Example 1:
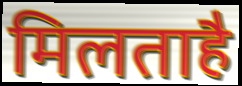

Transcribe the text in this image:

मिलताहै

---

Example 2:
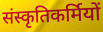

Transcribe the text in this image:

संस्कृतिकर्मियों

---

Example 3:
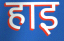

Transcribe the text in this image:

हाइ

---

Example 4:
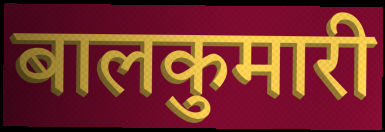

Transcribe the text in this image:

बालकुमारी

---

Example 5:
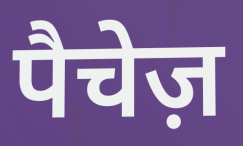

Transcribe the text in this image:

पैचेज़